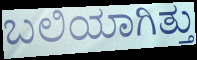
ಬಲಿಯಾಗಿತ್ತು